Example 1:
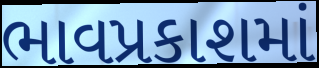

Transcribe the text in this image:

ભાવપ્રકાશમાં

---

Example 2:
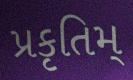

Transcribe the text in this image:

પ્રકૃતિમ્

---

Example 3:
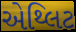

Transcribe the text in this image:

એથ્લિટ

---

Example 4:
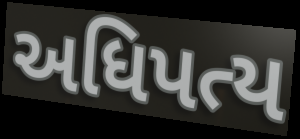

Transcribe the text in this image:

અધિપત્ય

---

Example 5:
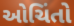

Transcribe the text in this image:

ઓચિંતો